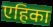
एहिका